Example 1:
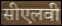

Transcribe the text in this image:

सीएलवी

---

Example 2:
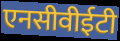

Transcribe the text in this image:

एनसीवीईटी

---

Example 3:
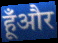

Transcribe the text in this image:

हूँऔर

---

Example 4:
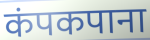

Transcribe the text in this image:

कंपकपाना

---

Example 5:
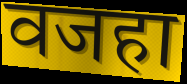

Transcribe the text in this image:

वजहा